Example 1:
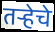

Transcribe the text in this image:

तर्‍हेचे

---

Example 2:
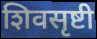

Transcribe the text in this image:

शिवसृष्टी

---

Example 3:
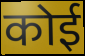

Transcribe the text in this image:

कोई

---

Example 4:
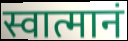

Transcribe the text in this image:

स्वात्मानं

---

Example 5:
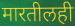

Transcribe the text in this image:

मारतीलही